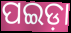
ପଇଡ଼ା